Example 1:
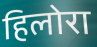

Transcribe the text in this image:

हिलोरा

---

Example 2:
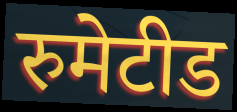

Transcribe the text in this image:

रुमेटीड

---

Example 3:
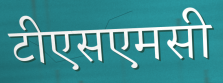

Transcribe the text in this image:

टीएसएमसी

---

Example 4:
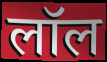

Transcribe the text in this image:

लॉल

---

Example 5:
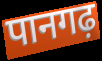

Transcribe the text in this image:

पानगढ़